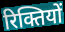
रिक्तियों